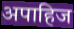
अपाहिज